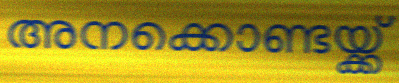
അനക്കൊണ്ടയ്ക്ക്